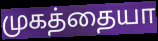
முகத்தையா